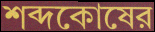
শব্দকোষের